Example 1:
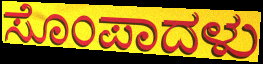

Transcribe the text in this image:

ಸೊಂಪಾದಳು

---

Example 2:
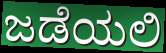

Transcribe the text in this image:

ಜಡೆಯಲಿ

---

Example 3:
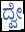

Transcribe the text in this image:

ದ್ವೇ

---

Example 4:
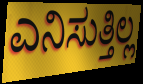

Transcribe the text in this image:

ಎನಿಸುತ್ತಿಲ್ಲ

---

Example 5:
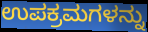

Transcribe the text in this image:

ಉಪಕ್ರಮಗಳನ್ನು